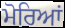
ਮੋਰਿਆਂ